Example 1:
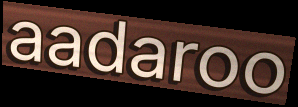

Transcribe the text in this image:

aadaroo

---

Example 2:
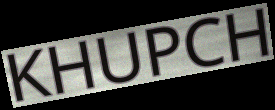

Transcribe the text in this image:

KHUPCH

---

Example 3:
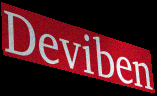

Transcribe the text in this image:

Deviben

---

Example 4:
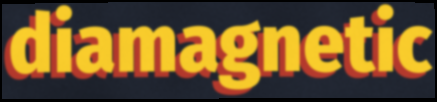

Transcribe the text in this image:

diamagnetic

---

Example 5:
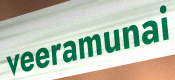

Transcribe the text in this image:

veeramunai